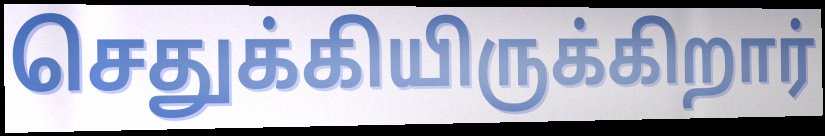
செதுக்கியிருக்கிறார்